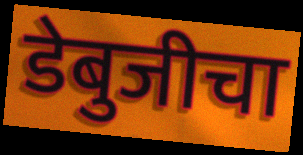
डेबुजीचा